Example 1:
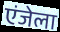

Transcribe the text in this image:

एंजेला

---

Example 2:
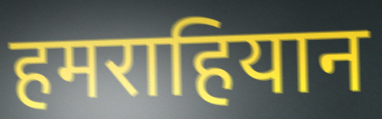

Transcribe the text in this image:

हमराहियान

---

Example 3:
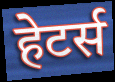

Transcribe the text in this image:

हेटर्स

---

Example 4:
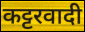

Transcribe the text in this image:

कट्टरवादी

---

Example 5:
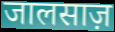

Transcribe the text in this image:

जालसाज़